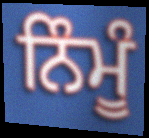
ਨਿੰਮੂੰ